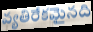
వ్యతిరేకమైనది